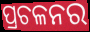
ପ୍ରଚଳନର